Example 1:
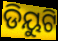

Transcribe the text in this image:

ଡିୟୁଟି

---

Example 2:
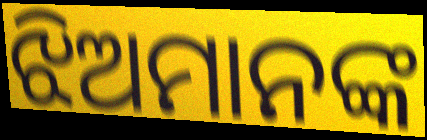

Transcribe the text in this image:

ଝିଅମାନଙ୍କ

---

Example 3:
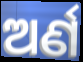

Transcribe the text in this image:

ଅର୍ଣ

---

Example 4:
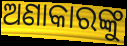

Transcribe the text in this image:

ଅଣାକାରଙ୍କୁ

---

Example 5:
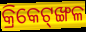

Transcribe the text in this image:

କ୍ରିକେଟ୍‌ଙ୍ଖଳ